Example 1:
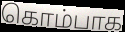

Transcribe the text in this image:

கொம்பாக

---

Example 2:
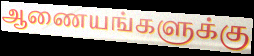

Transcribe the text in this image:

ஆணையங்களுக்கு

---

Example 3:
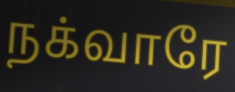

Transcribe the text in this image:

நக்வாரே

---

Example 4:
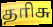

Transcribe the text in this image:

தரிசு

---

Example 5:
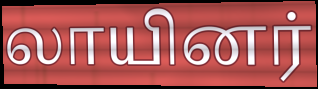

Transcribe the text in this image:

லாயினர்